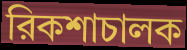
রিকশাচালক